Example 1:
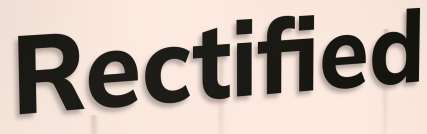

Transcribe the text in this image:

Rectified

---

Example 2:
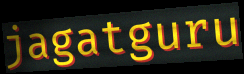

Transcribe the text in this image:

jagatguru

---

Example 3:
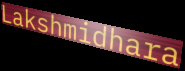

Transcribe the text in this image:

Lakshmidhara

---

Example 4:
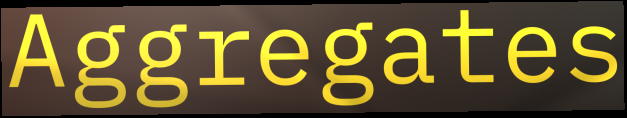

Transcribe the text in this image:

Aggregates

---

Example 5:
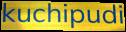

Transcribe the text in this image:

kuchipudi